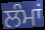
ਲੰਮਾਂ